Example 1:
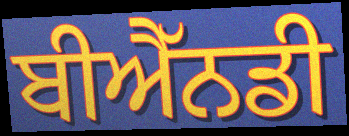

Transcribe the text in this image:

ਬੀਐੱਨਡੀ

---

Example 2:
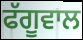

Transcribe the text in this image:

ਫੱਗੂਵਾਲ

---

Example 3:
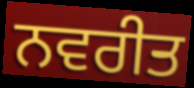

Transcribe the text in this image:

ਨਵਰੀਤ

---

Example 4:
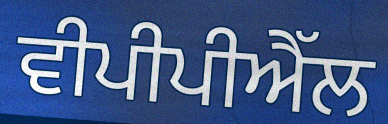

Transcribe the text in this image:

ਵੀਪੀਪੀਐੱਲ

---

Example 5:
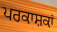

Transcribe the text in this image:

ਪਰਕਾਸ਼ਕਾਂ